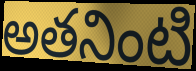
అతనింటి